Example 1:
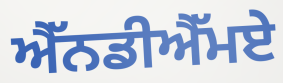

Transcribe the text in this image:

ਐੱਨਡੀਐੱਮਏ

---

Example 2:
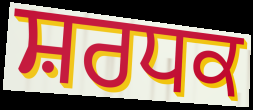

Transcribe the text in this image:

ਸ਼ਰਧਕ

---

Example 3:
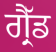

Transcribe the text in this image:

ਗ੍ਰੈੱਡ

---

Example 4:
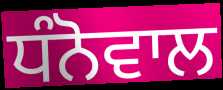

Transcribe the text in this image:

ਧੰਨੋਵਾਲ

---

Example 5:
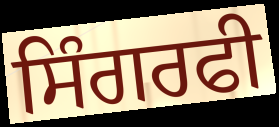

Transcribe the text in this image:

ਸਿੰਗਰਫੀ